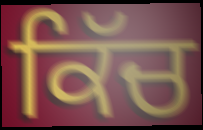
ਕਿੱਚ